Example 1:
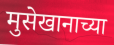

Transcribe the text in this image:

मुसेखानाच्या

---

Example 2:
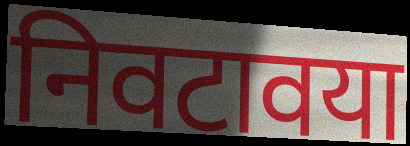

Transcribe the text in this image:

निवटावया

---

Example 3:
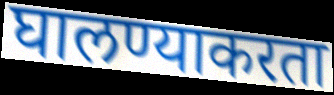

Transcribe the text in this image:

घालण्याकरता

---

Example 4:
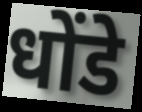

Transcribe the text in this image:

धोंडे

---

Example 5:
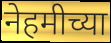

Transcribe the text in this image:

नेहमीच्या